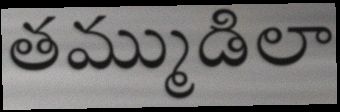
తమ్ముడిలా